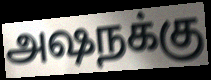
அஷநக்கு